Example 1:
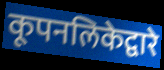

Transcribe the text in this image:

कूपनलिकेद्वारे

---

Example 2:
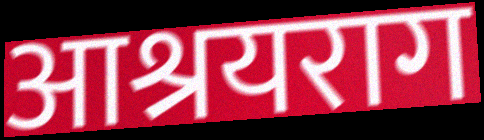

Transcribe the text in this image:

आश्रयराग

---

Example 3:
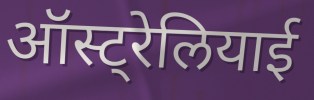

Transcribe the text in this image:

ऑस्ट्रेलियाई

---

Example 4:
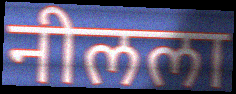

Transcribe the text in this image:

नीलला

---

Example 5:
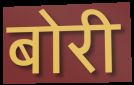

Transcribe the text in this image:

बोरी